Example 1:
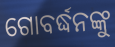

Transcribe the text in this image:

ଗୋବର୍ଦ୍ଧନଙ୍କୁ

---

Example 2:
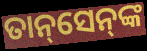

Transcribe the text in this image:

ତାନ୍‌ସେନ୍‌ଙ୍କ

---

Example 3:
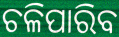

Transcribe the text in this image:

ଚଳିପାରିବ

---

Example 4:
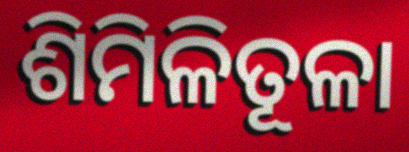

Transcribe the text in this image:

ଶିମିଳିତୂଳା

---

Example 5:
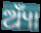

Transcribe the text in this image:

ଅ୍ୟାଁ